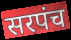
सरपंच